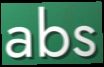
abs